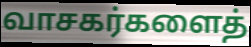
வாசகர்களைத்